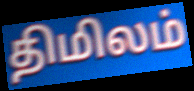
திமிலம்